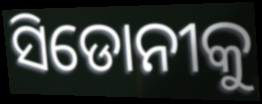
ସିଡୋନୀକୁ